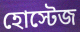
হোস্টেজ